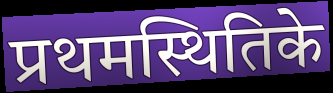
प्रथमस्थितिके